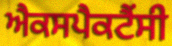
ਐਕਸਪੈਕਟੈਂਸੀ